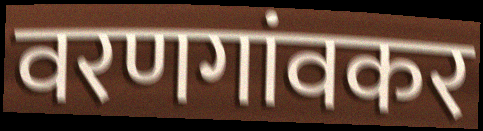
वरणगांवकर